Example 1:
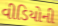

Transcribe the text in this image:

વીડિયોની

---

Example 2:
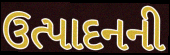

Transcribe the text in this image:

ઉત્પાદનની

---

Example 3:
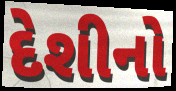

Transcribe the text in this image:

દેશીનો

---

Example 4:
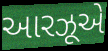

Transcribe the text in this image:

આરઝૂએ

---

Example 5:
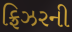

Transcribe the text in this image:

ફ્રિઝરની